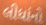
લીધાંનો